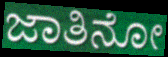
ಜಾತಿನೋ